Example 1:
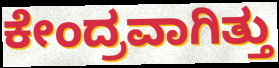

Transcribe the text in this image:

ಕೇಂದ್ರವಾಗಿತ್ತು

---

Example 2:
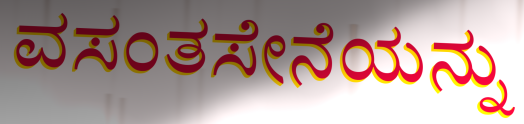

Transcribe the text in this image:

ವಸಂತಸೇನೆಯನ್ನು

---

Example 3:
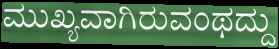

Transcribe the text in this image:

ಮುಖ್ಯವಾಗಿರುವಂಥದ್ದು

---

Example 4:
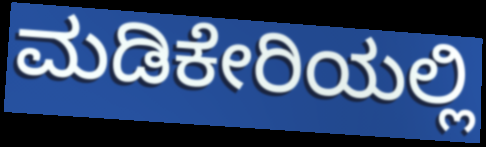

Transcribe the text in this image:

ಮಡಿಕೇರಿಯಲ್ಲಿ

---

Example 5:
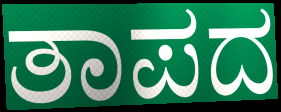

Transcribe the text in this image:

ತಾಪದ